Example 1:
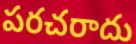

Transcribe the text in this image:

పరచరాదు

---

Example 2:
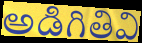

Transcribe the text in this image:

అడిగితివి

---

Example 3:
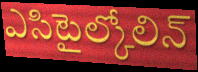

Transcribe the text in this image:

ఎసిటైల్కోలిన్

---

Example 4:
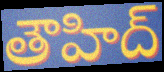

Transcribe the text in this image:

తౌహిద్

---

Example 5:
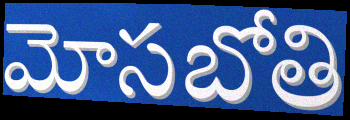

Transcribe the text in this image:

మోసబోతి